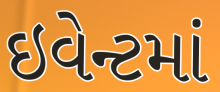
ઇવેન્ટમાં